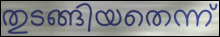
തുടങ്ങിയതെന്ന്